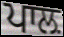
ਪਾਲ਼